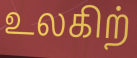
உலகிற்